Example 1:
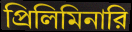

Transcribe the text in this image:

প্রিলিমিনারি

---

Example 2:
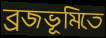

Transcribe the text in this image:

ব্রজভূমিতে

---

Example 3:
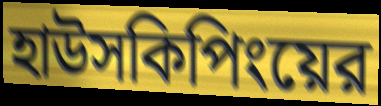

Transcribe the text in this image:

হাউসকিপিংয়ের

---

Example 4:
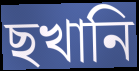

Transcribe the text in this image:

ছখানি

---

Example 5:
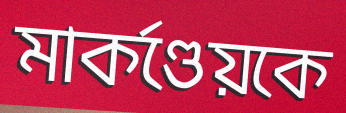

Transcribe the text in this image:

মার্কণ্ডেয়কে